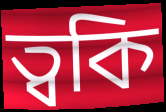
ত্বকি